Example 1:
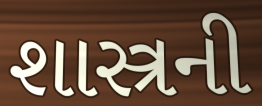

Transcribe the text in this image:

શાસ્ત્રની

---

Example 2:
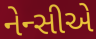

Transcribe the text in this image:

નેન્સીએ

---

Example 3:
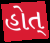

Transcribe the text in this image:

હોત્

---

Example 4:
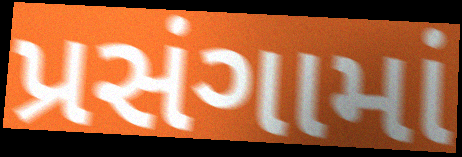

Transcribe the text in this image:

પ્રસંગામાં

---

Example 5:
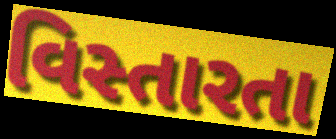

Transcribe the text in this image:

વિસ્તારતા